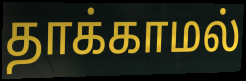
தாக்காமல்